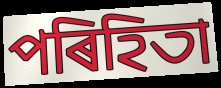
পৰিহিতা